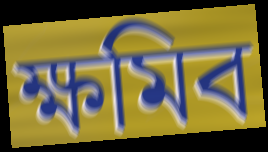
ক্ষমিব